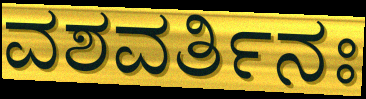
ವಶವರ್ತಿನಃ